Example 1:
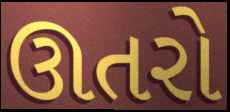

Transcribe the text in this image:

ઊતરો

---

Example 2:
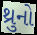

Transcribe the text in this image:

થ્રુનો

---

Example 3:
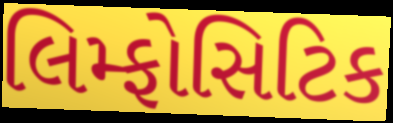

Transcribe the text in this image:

લિમ્ફોસિટિક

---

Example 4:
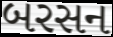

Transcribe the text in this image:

બરસન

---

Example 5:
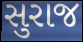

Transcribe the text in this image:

સુરાજ